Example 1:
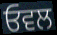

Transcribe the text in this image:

ਓਵਲ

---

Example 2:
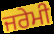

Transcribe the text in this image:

ਜਰੇਮੀ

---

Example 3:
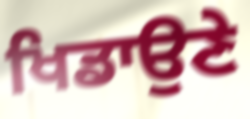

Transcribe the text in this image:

ਖਿਡਾਉਣੇ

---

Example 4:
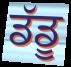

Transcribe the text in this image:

ਡੱਡੂ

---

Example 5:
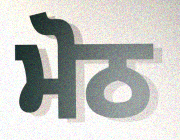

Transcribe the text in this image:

ਮੋਠ